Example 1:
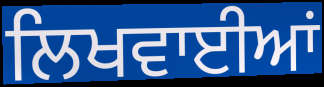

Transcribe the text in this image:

ਲਿਖਵਾਈਆਂ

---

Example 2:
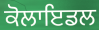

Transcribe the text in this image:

ਕੋਲਾਇਡਲ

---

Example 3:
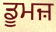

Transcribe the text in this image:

ਡੂਮਜ਼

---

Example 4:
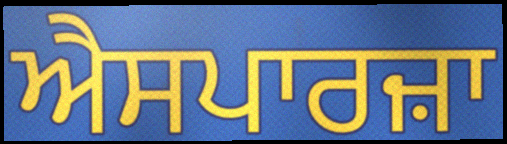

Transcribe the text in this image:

ਐਸਪਾਰਜ਼ਾ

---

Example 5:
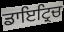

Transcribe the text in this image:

ਡਾਇਟ੍ਰਿਚ